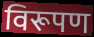
विरूपण